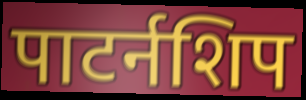
पाटर्नशिप